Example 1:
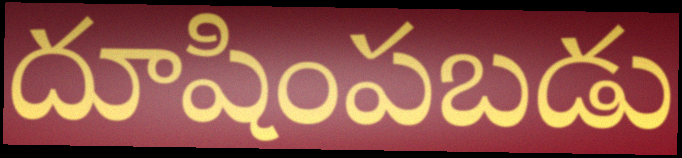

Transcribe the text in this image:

దూషింపబడు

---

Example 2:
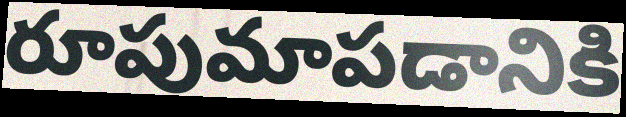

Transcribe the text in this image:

రూపుమాపడానికి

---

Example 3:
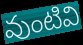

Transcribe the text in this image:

వుంటివి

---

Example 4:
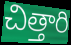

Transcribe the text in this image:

చిత్తారి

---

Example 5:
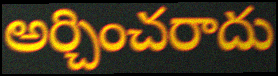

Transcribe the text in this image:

అర్చించరాదు